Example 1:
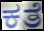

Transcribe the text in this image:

ಕತೆ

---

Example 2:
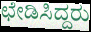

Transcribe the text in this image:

ಛೇಡಿಸಿದ್ದರು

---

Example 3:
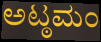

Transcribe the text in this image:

ಅಟ್ಠಮಂ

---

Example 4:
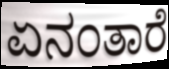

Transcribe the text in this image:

ಏನಂತಾರೆ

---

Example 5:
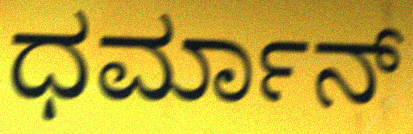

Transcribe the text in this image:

ಧರ್ಮಾನ್